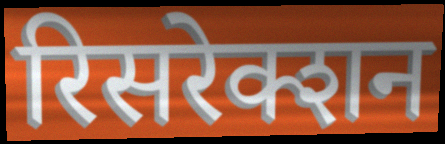
रिसरेक्शन